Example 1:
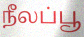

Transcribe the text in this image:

நீலப்பூ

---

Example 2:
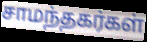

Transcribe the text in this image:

சாமந்தகர்கள்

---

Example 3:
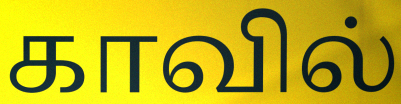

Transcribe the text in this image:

காவில்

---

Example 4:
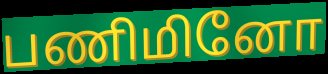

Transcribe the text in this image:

பணிமினோ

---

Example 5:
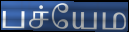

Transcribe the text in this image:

பச்யேம